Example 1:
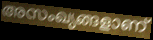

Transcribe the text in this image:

അസംഖ്യങ്ങളാണ്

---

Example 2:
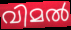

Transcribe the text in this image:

വിമൽ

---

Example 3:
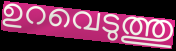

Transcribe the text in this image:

ഉറവെടുത്തു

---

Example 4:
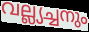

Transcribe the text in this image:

വല്ല്യച്ചനും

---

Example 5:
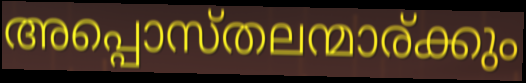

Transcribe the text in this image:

അപ്പൊസ്തലന്മാര്ക്കും